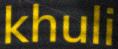
khuli